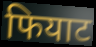
फियाट